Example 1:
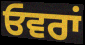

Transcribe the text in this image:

ਓਵਰਾਂ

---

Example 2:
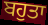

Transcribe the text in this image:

ਬਹੁਤਾ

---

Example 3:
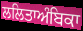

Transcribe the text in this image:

ਲਲਿਤਾਅੰਬਿਕਾ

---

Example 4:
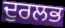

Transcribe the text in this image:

ਦੁਰਲਭ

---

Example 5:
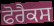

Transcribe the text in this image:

ਫੋਰੈਕਸ